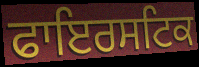
ਫਾਇਰਸਟਿਕ